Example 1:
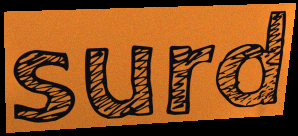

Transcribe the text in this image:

surd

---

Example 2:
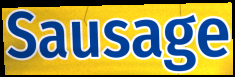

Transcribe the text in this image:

Sausage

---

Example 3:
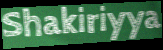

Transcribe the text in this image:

Shakiriyya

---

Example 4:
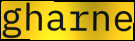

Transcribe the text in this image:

gharne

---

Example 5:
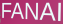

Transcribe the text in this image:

FANAI